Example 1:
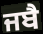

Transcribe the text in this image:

ਜਬੈ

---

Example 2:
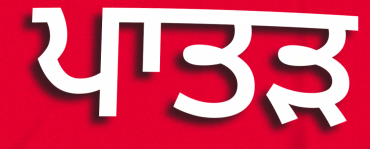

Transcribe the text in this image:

ਪਾਤੜ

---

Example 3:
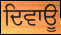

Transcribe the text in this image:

ਦਿਵਾਊ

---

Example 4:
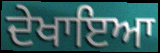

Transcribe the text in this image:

ਦੇਖਾਇਆ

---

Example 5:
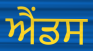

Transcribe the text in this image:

ਐਂਡਸ